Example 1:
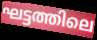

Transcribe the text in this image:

ഘട്ടത്തിലെ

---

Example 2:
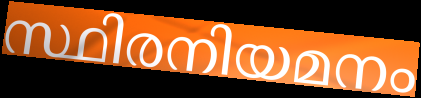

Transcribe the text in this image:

സ്ഥിരനിയമനം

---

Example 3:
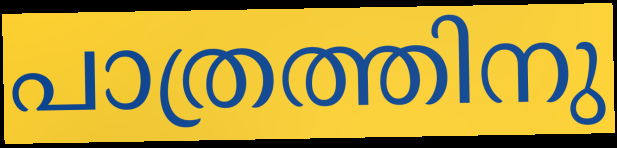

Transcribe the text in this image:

പാത്രത്തിനു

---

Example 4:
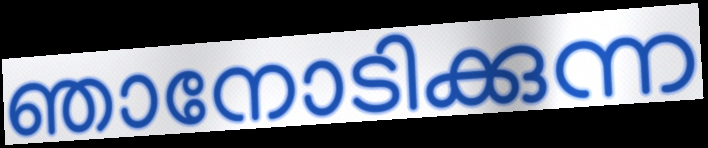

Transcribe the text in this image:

ഞാനോടിക്കുന്ന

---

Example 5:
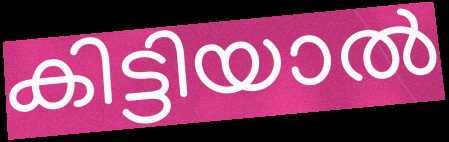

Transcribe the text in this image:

കിട്ടിയാൽ